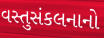
વસ્તુસંકલનાનો